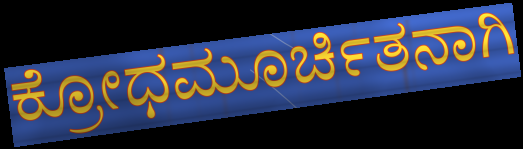
ಕ್ರೋಧಮೂರ್ಚಿತನಾಗಿ